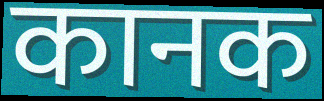
कानक